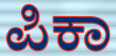
ಪಿಕಾ